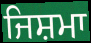
ਜਿਸ਼ਮਾ